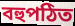
বহুপঠিত